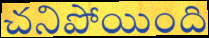
చనిపోయింది